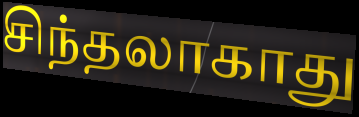
சிந்தலாகாது